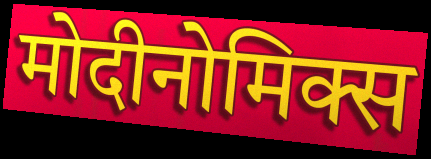
मोदीनोमिक्स